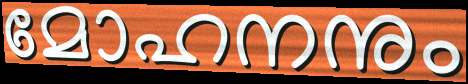
മോഹനനും